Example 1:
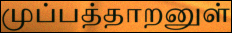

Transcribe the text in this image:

முப்பத்தாறனுள்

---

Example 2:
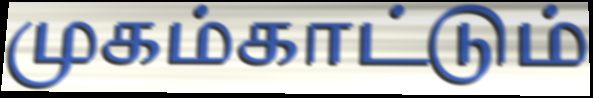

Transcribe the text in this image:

முகம்காட்டும்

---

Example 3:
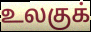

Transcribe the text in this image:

உலகுக்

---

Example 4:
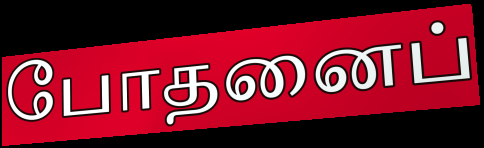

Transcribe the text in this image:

போதனைப்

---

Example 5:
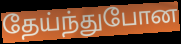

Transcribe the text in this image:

தேய்ந்துபோன